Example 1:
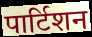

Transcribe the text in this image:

पार्टिशन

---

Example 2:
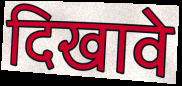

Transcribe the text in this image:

दिखावे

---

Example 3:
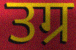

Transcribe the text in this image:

उग्र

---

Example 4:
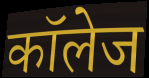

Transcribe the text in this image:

कॉलेज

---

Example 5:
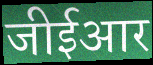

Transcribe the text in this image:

जीईआर